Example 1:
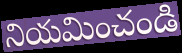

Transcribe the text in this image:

నియమించండి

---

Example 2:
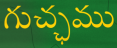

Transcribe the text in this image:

గుచ్ఛము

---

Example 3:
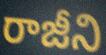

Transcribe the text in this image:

రాజీని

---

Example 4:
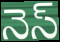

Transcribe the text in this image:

నెస్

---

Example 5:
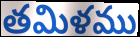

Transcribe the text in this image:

తమిళము